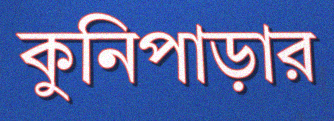
কুনিপাড়ার